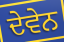
ਦੇਵੇਨ